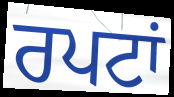
ਰਪਟਾਂ